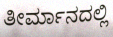
ತೀರ್ಮಾನದಲ್ಲಿ